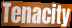
Tenacity